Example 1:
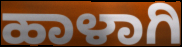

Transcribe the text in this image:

ಹಾಳಾಗಿ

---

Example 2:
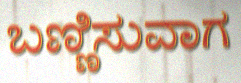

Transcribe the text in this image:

ಬಣ್ಣಿಸುವಾಗ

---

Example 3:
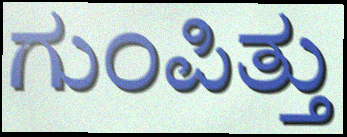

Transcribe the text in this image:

ಗುಂಪಿತ್ತು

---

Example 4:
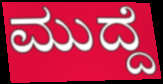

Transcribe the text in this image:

ಮುದ್ದೆ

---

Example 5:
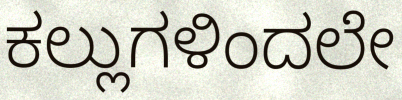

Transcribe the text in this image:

ಕಲ್ಲುಗಳಿಂದಲೇ